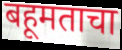
बहूमताचा